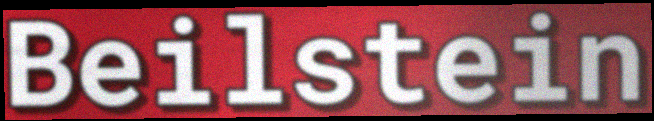
Beilstein